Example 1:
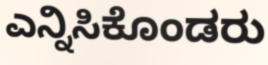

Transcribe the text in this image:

ಎನ್ನಿಸಿಕೊಂಡರು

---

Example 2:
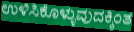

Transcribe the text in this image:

ಉಳಿಸಿಕೊಳ್ಳುವುದಕ್ಕಿಂತ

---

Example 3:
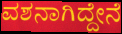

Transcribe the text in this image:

ವಶನಾಗಿದ್ದೇನೆ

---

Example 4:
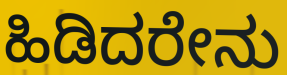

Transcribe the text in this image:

ಹಿಡಿದರೇನು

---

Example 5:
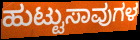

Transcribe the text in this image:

ಹುಟ್ಟುಸಾವುಗಳ